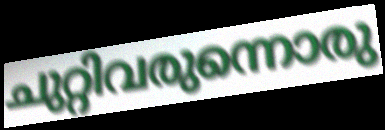
ചുറ്റിവരുന്നൊരു